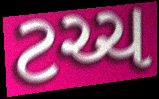
ટચ્ચ